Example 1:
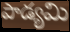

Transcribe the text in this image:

పాడ్యమి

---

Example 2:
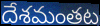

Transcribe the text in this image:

దేశమంతట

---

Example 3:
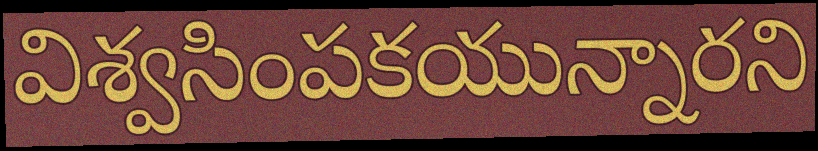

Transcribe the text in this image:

విశ్వసింపకయున్నారని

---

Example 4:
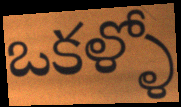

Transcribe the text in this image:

ఒకళ్ళో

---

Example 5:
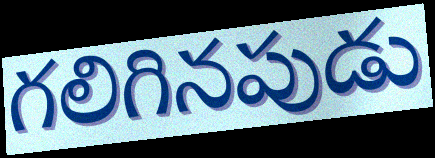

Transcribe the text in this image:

గలిగినపుడు